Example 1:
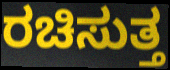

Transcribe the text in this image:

ರಚಿಸುತ್ತ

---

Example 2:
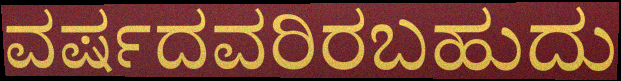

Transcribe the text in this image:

ವರ್ಷದವರಿರಬಹುದು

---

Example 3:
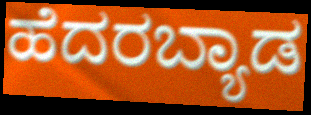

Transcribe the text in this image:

ಹೆದರಬ್ಯಾಡ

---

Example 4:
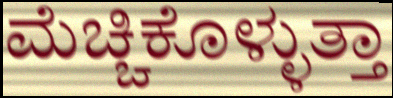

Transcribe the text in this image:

ಮೆಚ್ಚಿಕೊಳ್ಳುತ್ತಾ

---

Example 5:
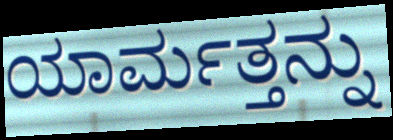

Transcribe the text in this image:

ಯಾರ್ಮತ್ತನ್ನು